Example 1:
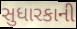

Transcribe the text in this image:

સુધારકાની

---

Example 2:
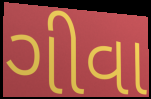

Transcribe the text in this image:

ગીવા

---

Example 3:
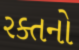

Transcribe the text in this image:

રક્તનો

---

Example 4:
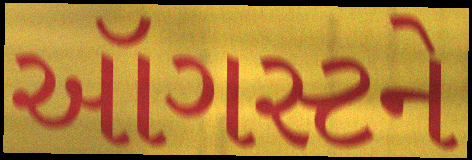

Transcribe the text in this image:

ઑગસ્ટને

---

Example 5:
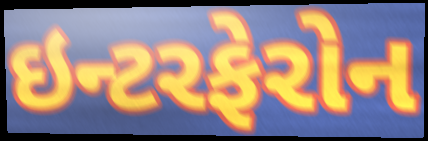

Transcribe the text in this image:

ઇન્ટરફેરોન